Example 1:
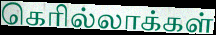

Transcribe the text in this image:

கெரில்லாக்கள்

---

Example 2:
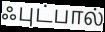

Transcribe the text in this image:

ஃபுட்பால்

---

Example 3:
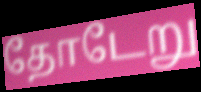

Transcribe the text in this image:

தோடேறு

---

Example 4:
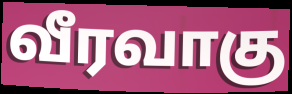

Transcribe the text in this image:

வீரவாகு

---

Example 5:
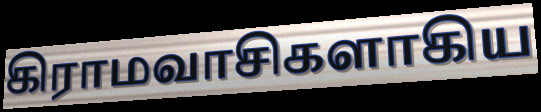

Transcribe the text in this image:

கிராமவாசிகளாகிய